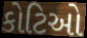
કોટિઓ